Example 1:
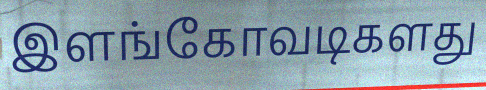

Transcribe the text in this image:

இளங்கோவடிகளது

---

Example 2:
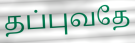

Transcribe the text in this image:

தப்புவதே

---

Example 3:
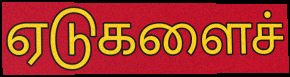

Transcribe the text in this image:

ஏடுகளைச்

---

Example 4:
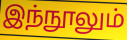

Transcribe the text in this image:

இந்நூலும்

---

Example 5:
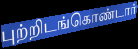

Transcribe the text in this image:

புற்றிடங்கொண்டார்